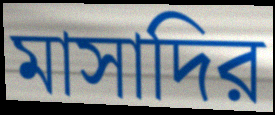
মাসাদির